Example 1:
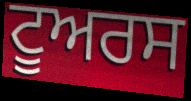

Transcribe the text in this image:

ਟੂਅਰਸ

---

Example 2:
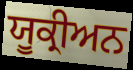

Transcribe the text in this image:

ਯੂਕ੍ਰੀਅਨ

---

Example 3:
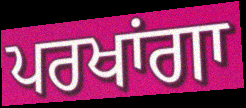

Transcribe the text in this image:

ਪਰਖਾਂਗਾ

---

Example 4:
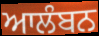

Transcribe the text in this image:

ਆਲੰਬਨ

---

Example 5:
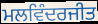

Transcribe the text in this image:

ਮਲਵਿੰਦਰਜੀਤ